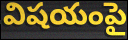
విషయంపై